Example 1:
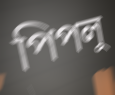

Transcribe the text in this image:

পিপলু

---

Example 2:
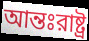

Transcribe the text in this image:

আন্তঃরাষ্ট্র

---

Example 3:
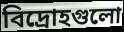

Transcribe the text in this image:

বিদ্রোহগুলো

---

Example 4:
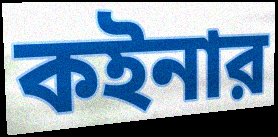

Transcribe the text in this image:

কইনার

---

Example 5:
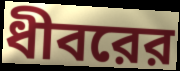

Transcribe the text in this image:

ধীবরের